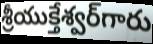
శ్రీయుక్తేశ్వర్‌గారు